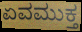
ಏವಮುಕ್ತ